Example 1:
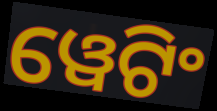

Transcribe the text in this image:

ୱେଟିଂ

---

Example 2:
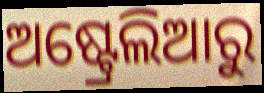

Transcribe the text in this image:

ଅଷ୍ଟ୍ରେଲିଆରୁ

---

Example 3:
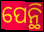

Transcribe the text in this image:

ପେନ୍ଥି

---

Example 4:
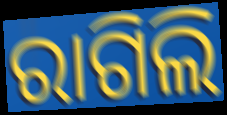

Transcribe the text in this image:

ରାଗିଲି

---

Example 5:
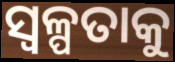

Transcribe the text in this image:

ସ୍ଵଳ୍ପତାକୁ